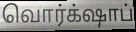
வொர்க்‌ஷாப்